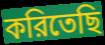
করিতেছি